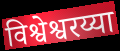
विश्वेश्वरय्या